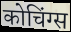
कोचिंग्स